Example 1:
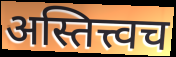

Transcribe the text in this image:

अस्तित्त्वच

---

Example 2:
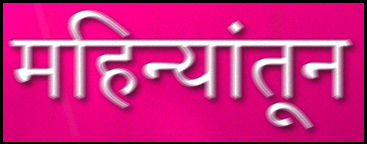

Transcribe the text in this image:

महिन्यांतून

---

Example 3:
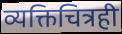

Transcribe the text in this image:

व्यक्तिचित्रही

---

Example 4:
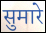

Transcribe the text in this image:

सुमारे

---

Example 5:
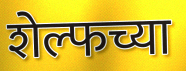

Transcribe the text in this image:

शेल्फच्या